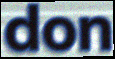
don